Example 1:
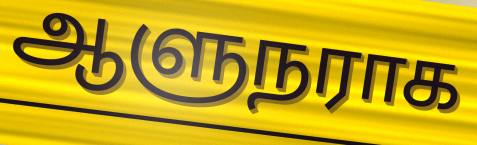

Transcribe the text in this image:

ஆளுநராக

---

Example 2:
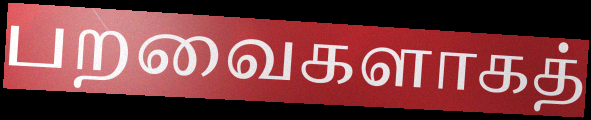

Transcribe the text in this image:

பறவைகளாகத்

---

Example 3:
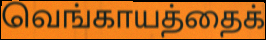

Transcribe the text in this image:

வெங்காயத்தைக்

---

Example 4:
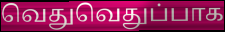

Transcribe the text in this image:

வெதுவெதுப்பாக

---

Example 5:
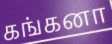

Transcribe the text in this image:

கங்கனா